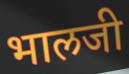
भालजी